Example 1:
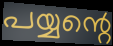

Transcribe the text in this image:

പയ്യന്റെ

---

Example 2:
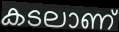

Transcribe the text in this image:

കടലാണ്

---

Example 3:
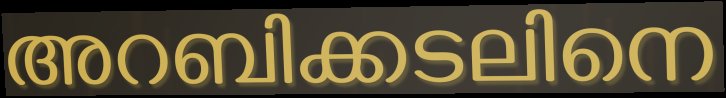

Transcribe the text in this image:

അറബിക്കടലിനെ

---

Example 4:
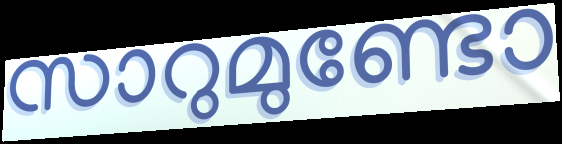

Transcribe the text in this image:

സാറുമുണ്ടോ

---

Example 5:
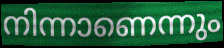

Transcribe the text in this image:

നിന്നാണെന്നും